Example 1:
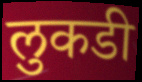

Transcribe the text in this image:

लुकडी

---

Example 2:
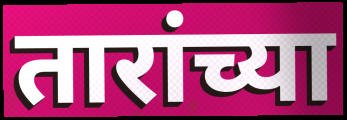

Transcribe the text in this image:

तारांच्या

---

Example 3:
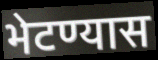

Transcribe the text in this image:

भेटण्यास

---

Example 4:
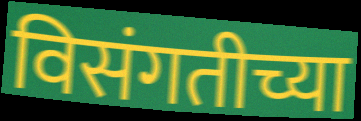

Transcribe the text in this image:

विसंगतीच्या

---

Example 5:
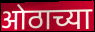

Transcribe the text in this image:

ओठाच्या